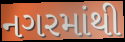
નગરમાંથી